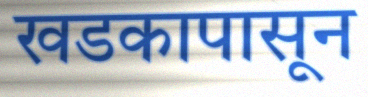
खडकापासून